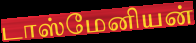
டாஸ்மேனியன்